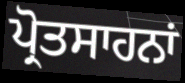
ਪ੍ਰੋਤਸਾਹਨਾਂ